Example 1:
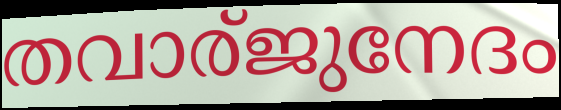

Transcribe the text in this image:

തവാര്ജുനേദം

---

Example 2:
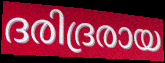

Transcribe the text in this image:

ദരിദ്രരായ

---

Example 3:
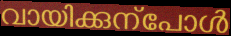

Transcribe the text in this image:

വായിക്കുന്പോൾ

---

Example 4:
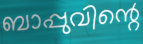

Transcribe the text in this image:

ബാപ്പുവിന്റെ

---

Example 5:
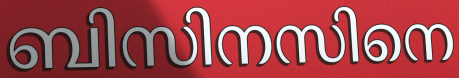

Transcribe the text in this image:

ബിസിനസിനെ